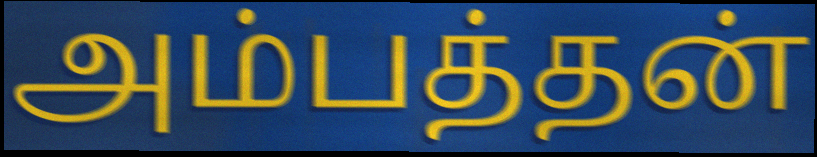
அம்பத்தன்